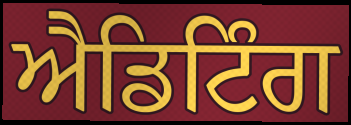
ਐਡਿਟਿੰਗ